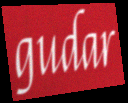
gudar